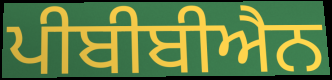
ਪੀਬੀਬੀਐਨ